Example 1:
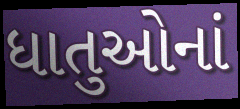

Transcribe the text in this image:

ધાતુઓનાં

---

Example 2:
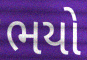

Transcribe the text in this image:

ભયો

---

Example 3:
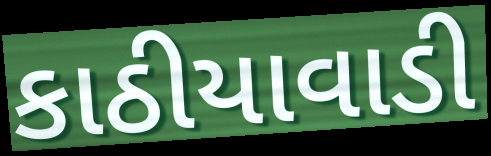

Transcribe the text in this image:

કાઠીયાવાડી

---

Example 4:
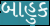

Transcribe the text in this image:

બાહુક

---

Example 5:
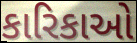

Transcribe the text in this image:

કારિકાઓ